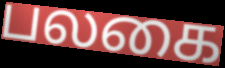
பலகை